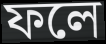
ফলে